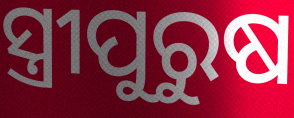
ସ୍ତ୍ରୀପୁରୁଷ